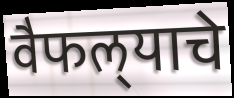
वैफल्याचे